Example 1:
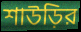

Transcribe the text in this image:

শাউড়ির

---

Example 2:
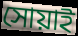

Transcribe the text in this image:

সোয়াই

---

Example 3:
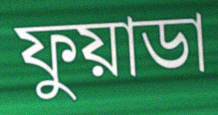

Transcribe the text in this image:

ফুয়াডা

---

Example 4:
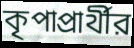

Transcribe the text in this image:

কৃপাপ্রার্থীর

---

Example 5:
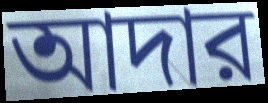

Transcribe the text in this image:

আদার